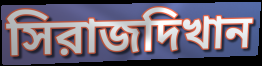
সিরাজদিখান